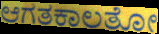
ಆಗತಕಾಲತೋ